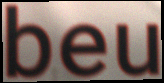
beu